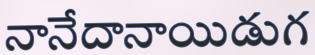
నానేదానాయిడుగ